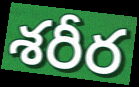
శరీర